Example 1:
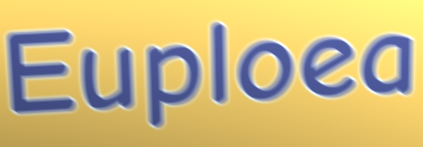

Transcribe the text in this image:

Euploea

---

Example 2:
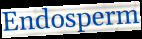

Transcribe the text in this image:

Endosperm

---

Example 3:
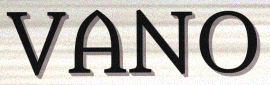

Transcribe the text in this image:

VANO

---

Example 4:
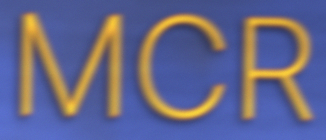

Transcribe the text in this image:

MCR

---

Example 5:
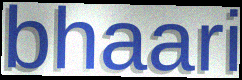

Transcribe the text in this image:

bhaari